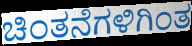
ಚಿಂತನೆಗಳಿಗಿಂತ